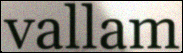
vallam